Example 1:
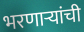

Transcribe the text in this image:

भरणाऱ्यांची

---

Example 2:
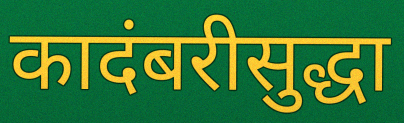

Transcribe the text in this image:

कादंबरीसुद्धा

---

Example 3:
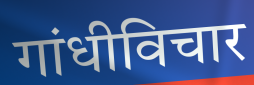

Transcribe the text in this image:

गांधीविचार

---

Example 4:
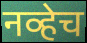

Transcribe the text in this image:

नव्हेच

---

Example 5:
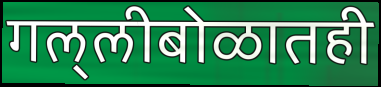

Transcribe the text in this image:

गल्लीबोळातही